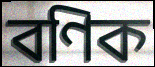
বণিক